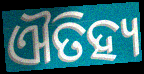
ଐତିହ୍ୟ